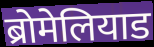
ब्रोमेलियाड